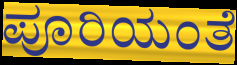
ಪೂರಿಯಂತೆ